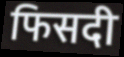
फिसदी